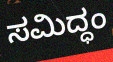
ಸಮಿದ್ಧಂ